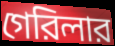
গেরিলার